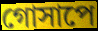
গোসাপে